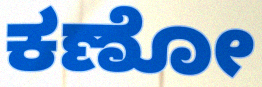
ಕಣೋ